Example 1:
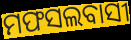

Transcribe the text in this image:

ମଫସଲବାସୀ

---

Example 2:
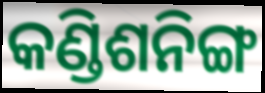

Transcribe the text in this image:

କଣ୍ଡିଶନିଙ୍ଗ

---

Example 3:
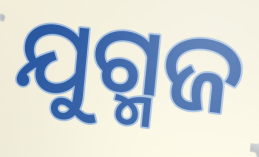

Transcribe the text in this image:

ଯୁଗ୍ମଜ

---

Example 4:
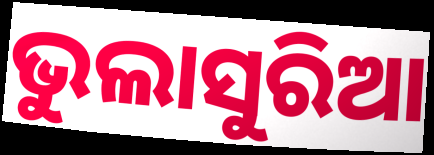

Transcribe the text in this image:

ଭୁଲାସୁରିଆ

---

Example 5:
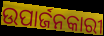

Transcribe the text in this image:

ଉପାର୍ଜନକାରୀ